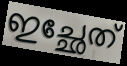
ഇച്ഛേത്